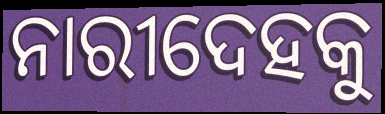
ନାରୀଦେହକୁ